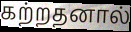
கற்றதனால்